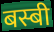
बस्बी